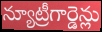
న్యూట్రీగార్డెన్లు